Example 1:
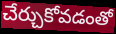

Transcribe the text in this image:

చేర్చుకోవడంతో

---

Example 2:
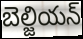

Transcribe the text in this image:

బెల్జియన్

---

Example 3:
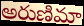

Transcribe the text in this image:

అరుణిమా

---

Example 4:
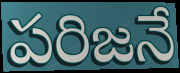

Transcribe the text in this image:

పరిజనే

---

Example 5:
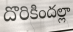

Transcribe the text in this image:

దొరికిందల్లా